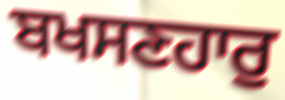
ਬਖਸਣਹਾਰੁ